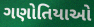
ગણોતિયાઓ